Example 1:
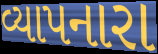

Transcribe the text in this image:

વ્યાપનારા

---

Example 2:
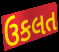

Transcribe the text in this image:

ઉકલત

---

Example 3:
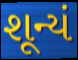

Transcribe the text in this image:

શૂન્યં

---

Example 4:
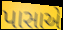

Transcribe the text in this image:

પાસાએ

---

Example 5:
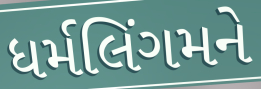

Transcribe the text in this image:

ધર્મલિંગમને